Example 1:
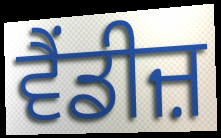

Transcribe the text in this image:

ਵੈਂਡੀਜ਼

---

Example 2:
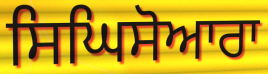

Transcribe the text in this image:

ਸਿਘਿਸੋਆਰਾ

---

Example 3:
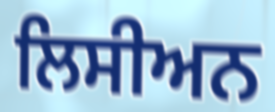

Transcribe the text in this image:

ਲਿਸੀਅਨ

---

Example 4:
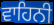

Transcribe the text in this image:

ਵਾਹਿਨੀ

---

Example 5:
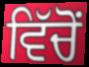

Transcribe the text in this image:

ਵਿੱਚੋੰ